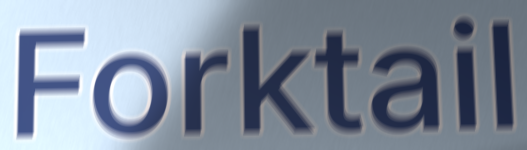
Forktail